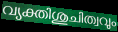
വ്യക്തിശുചിത്വവും